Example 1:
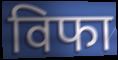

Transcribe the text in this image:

विफा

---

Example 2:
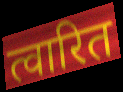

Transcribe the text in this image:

त्वारित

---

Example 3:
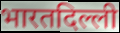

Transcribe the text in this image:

भारतदिल्ली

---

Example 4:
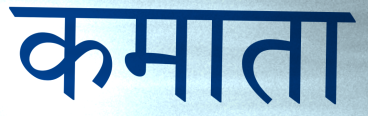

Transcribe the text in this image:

कमाता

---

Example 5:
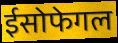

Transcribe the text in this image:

ईसोफेगल